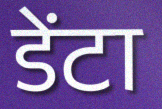
डेंटा